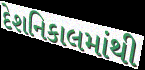
દેશનિકાલમાંથી